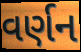
વર્ણન